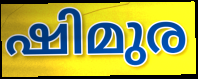
ഷിമുര